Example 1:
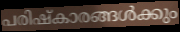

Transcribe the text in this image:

പരിഷ്കാരങ്ങൾക്കും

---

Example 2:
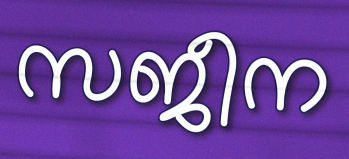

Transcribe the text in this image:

സജീന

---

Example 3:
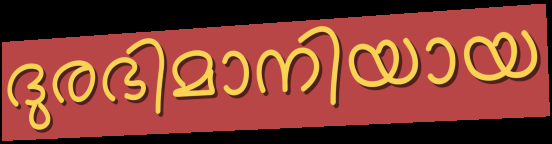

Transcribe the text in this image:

ദുരഭിമാനിയായ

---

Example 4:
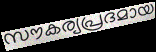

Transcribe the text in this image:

സൗകര്യപ്രദമായ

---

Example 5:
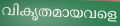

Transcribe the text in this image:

വികൃതമായവളെ